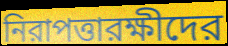
নিরাপত্তারক্ষীদের